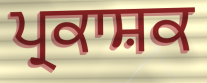
ਪ੍ਰਕਾਸ਼ਕ